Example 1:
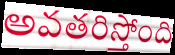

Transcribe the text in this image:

అవతరిస్తోంది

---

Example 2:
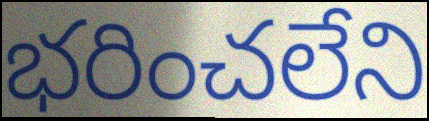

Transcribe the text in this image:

భరించలేని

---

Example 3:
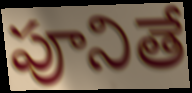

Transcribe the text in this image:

పూనితే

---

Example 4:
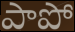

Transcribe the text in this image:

పాపో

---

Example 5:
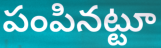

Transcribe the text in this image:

పంపినట్టూ